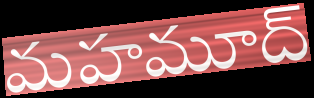
మహమూద్